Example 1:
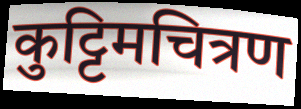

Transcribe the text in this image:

कुट्टिमचित्रण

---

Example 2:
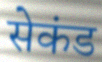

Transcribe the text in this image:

सेकंड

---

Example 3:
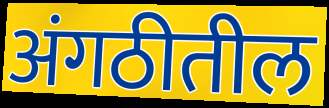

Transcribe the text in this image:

अंगठीतील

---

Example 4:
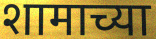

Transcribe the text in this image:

शामाच्या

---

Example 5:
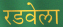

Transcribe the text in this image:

रडवेला